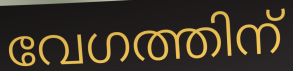
വേഗത്തിന്